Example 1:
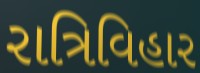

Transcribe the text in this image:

રાત્રિવિહાર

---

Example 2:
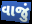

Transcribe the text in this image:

વાજું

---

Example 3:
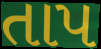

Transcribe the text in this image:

તાપ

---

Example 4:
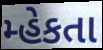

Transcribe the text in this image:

મ્હેકતા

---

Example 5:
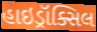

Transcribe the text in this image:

હાઇડ્રૉક્સિલ